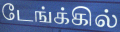
டேங்க்கில்